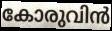
കോരുവിൻ